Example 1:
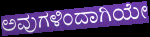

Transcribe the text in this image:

ಅವುಗಳಿಂದಾಗಿಯೇ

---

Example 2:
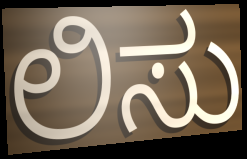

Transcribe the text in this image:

ಲಿಸು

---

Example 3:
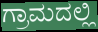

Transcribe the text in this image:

ಗ್ರಾಮದಲ್ಲಿ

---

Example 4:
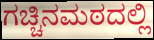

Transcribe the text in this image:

ಗಚ್ಚಿನಮಠದಲ್ಲಿ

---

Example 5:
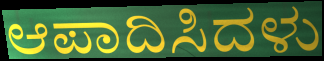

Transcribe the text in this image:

ಆಪಾದಿಸಿದಳು